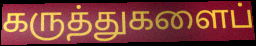
கருத்துகளைப்